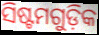
ସିଷ୍ଟମଗୁଡ଼ିକ